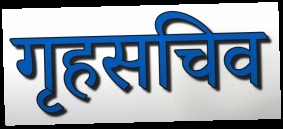
गृहसचिव